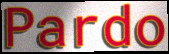
Pardo